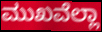
ಮುಖವೆಲ್ಲಾ